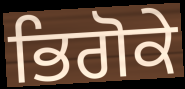
ਭਿਗੋਕੇ